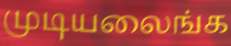
முடியலைங்க